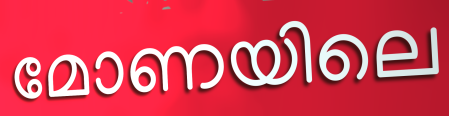
മോണയിലെ